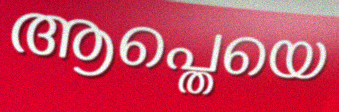
ആപ്തെയെ